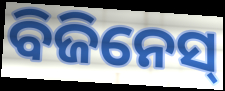
ବିଜିନେସ୍